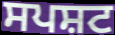
ਸਪਸ਼ਟ